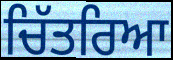
ਚਿੱਤਰਿਆ